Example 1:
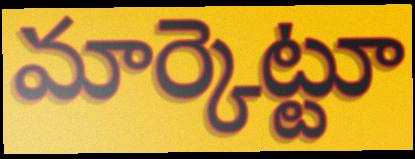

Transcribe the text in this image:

మార్కెట్టూ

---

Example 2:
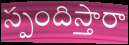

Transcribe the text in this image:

స్పందిస్తారా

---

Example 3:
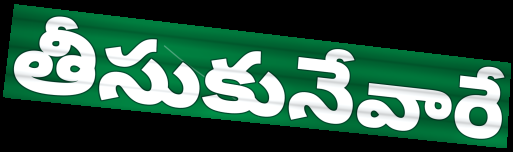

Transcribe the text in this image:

తీసుకునేవారే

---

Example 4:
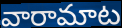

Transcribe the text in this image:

వారామాట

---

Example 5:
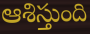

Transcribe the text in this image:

ఆశిస్తుంది